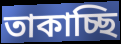
তাকাচ্ছি